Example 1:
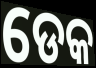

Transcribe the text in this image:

ଡେକ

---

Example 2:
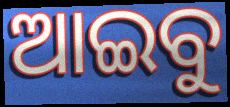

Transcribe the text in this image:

ଆଇବୁ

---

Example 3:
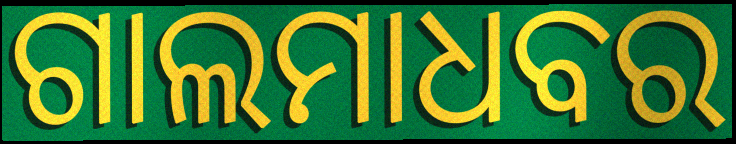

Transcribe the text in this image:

ଗାଲମାଧବର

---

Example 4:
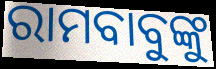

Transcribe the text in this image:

ରାମବାବୁଙ୍କୁ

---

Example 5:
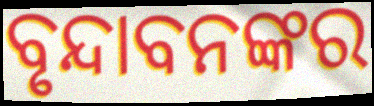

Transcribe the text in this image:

ବୃନ୍ଦାବନଙ୍କର